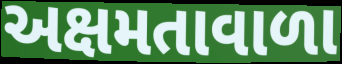
અક્ષમતાવાળા